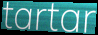
tartar